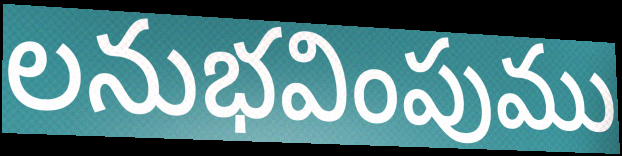
లనుభవింపుము